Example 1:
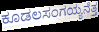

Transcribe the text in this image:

ಕೂಡಲಸಂಗಯ್ಯನೆತ್ತ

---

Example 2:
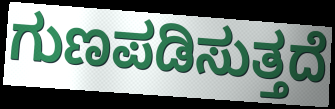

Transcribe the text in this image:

ಗುಣಪಡಿಸುತ್ತದೆ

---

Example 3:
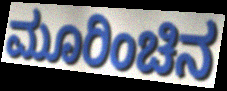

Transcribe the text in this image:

ಮೂರಿಂಚಿನ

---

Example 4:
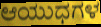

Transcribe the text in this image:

ಆಯುಧಗಳ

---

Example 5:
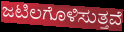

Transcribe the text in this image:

ಜಟಿಲಗೊಳಿಸುತ್ತವೆ